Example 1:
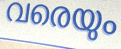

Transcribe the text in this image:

വരെയും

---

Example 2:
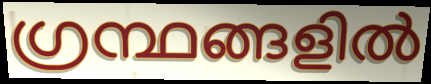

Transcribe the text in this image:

ഗ്രന്ഥങ്ങളിൽ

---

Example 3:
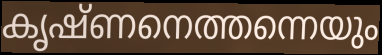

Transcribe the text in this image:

കൃഷ്ണനെത്തന്നെയും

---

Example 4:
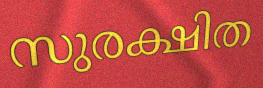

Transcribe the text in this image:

സുരക്ഷിത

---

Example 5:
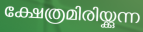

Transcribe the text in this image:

ക്ഷേത്രമിരിയ്ക്കുന്ന